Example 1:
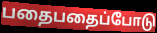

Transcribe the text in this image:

பதைபதைப்போடு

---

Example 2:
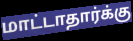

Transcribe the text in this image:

மாட்டாதார்க்கு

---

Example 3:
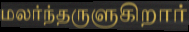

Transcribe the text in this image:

மலர்ந்தருளுகிறார்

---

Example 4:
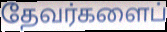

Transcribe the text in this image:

தேவர்களைப்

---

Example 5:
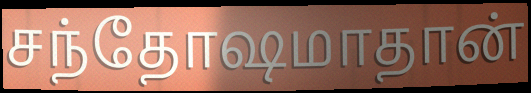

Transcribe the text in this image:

சந்தோஷமாதான்